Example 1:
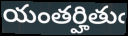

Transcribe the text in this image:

యంతర్హితుఁ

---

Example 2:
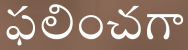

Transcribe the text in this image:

ఫలించగా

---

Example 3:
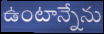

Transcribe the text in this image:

ఉంటాన్నేను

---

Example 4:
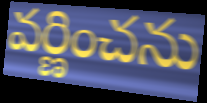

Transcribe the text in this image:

వర్ణించను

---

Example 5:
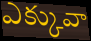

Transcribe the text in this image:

ఎక్కువా